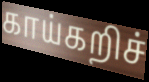
காய்கறிச்